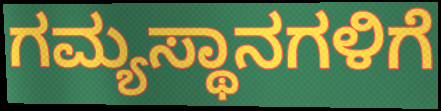
ಗಮ್ಯಸ್ಥಾನಗಳಿಗೆ